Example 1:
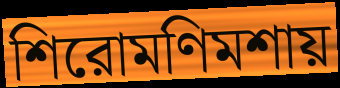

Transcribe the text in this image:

শিরোমণিমশায়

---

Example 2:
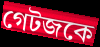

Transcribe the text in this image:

গেটজকে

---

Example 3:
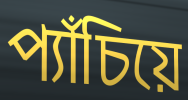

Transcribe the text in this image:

প্যাঁচিয়ে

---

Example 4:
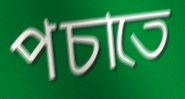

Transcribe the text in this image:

পচাতে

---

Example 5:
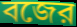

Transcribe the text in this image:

বজের